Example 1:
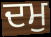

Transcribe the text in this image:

ਦਮੁ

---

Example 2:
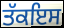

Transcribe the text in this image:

ਤੱਕਇਸ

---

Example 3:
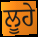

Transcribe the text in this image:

ਲੂਹੇ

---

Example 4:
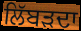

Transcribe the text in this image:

ਲਿੱਬੜਦਾ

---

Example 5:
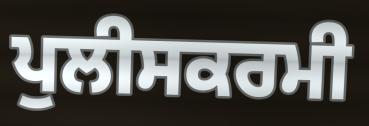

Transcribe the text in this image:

ਪੁਲੀਸਕਰਮੀ